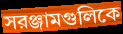
সরঞ্জামগুলিকে